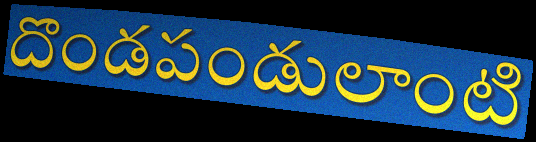
దొండపండులాంటి